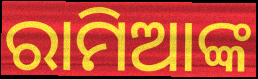
ରାମିଆଙ୍କ